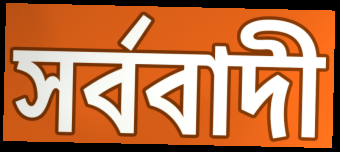
সর্ববাদী